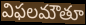
విఫలమౌతూ